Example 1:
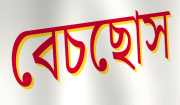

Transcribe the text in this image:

বেচছোস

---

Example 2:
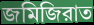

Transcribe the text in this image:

জমিজিরাত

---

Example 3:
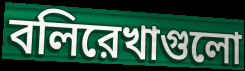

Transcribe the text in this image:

বলিরেখাগুলো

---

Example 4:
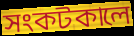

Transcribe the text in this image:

সংকটকালে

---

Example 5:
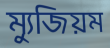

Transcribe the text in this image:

ম্যুজিয়ম